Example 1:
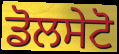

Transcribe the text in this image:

ਡੋਲਸੇਟੋ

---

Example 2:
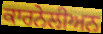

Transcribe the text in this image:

ਕਾਰਨੇਲੀਅਨ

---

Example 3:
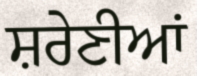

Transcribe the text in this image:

ਸ਼ਰੇਣੀਆਂ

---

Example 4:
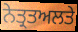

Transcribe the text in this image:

ਨੇਤ੍ਰਤਅਲਤੇ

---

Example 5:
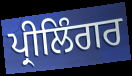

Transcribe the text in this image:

ਪ੍ਰੀਲਿੰਗਰ